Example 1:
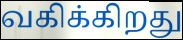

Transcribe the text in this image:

வகிக்கிறது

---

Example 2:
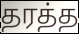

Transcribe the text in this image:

தரத்த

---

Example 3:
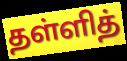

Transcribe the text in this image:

தள்ளித்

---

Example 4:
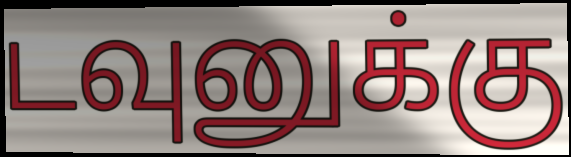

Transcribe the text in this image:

டவுனுக்கு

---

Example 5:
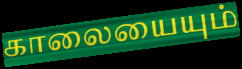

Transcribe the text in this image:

காலையையும்